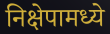
निक्षेपामध्ये